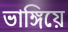
ভাঙ্গিয়ে